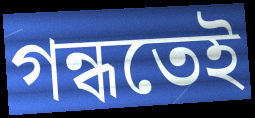
গন্ধতেই